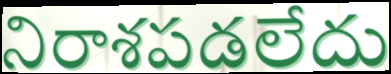
నిరాశపడలేదు